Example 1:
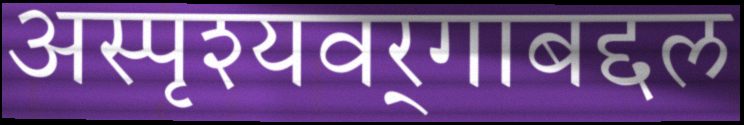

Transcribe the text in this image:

अस्पृश्यवर्गाबद्दल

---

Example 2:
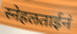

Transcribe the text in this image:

स्नेहलताईनं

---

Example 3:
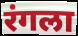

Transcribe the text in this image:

रंगला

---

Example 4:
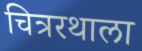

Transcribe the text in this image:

चित्ररथाला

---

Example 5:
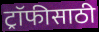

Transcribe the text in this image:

ट्रॉफीसाठी